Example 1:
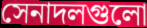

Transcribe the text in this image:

সেনাদলগুলো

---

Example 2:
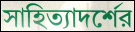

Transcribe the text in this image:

সাহিত্যাদর্শের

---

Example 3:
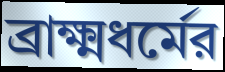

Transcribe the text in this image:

ব্রাক্ষ্মধর্মের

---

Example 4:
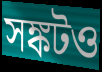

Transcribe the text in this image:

সঙ্কটও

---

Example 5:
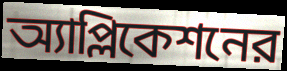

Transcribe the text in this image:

অ্যাপ্লিকেশনের